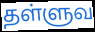
தள்ளுவ